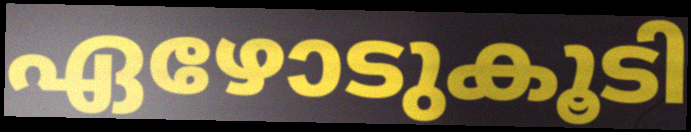
ഏഴോടുകൂടി